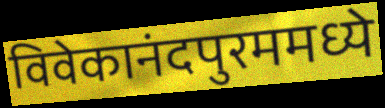
विवेकानंदपुरममध्ये